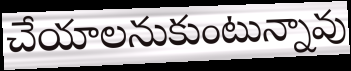
చేయాలనుకుంటున్నావు